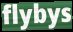
flybys